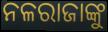
ନଳରାଜାଙ୍କୁ